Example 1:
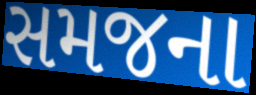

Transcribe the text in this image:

સમજના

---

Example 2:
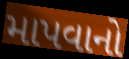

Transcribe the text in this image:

માપવાનો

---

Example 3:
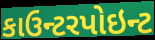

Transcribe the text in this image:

કાઉન્ટરપોઇન્ટ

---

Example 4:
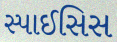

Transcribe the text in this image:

સ્પાઈસિસ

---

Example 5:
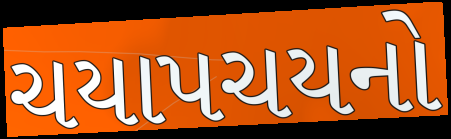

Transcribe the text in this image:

ચયાપચયનો